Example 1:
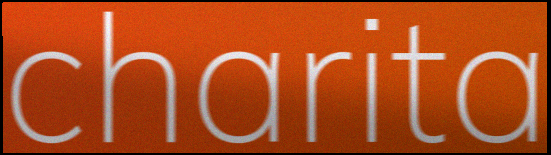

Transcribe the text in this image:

charita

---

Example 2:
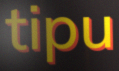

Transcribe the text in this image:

tipu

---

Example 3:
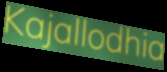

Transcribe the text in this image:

Kajallodhia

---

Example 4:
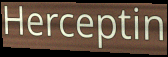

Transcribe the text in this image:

Herceptin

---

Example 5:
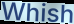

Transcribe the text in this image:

Whish